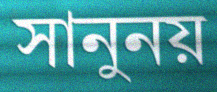
সানুনয়